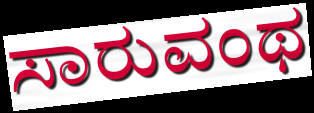
ಸಾರುವಂಥ